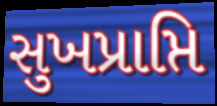
સુખપ્રાપ્તિ